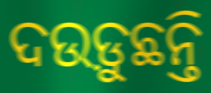
ଦଉଡ଼ୁଛନ୍ତି